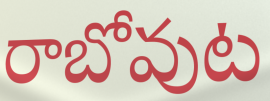
రాబోవుట